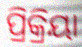
ପ୍ରିକ୍ରିୟା